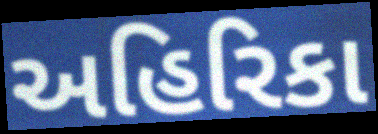
અહિરિકા